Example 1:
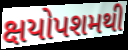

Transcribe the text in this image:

ક્ષયોપશમથી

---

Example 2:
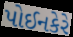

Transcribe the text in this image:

પોઈનકેરે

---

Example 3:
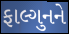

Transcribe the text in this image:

ફાલ્ગુનને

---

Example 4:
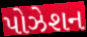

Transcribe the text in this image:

પોઝેશન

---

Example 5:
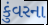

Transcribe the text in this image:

કુંવરના